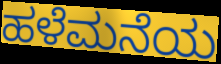
ಹಳೆಮನೆಯ